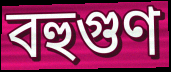
বহুগুণ